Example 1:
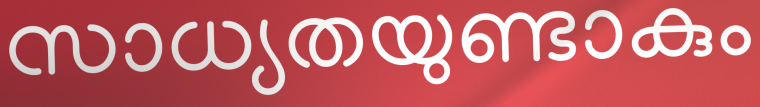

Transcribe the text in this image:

സാധ്യതയുണ്ടാകും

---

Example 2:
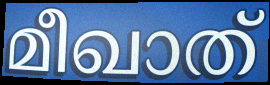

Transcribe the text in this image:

മീഖാത്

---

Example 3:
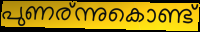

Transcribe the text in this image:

പുണര്ന്നുകൊണ്ട്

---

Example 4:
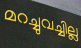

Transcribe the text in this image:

മറച്ചുവച്ചില്ല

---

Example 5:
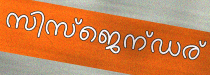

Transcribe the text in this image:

സിസ്ജെന്ഡര്